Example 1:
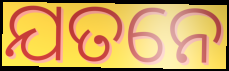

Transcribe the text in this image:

ଯତନେ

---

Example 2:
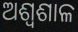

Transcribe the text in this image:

ଅଶ୍ୱଶାଳ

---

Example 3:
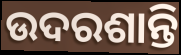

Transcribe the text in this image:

ଉଦରଶାନ୍ତି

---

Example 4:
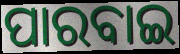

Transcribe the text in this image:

ପାରବାଇ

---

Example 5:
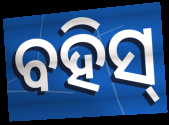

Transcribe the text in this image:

ବହିସ୍